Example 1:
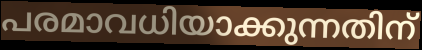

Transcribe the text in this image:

പരമാവധിയാക്കുന്നതിന്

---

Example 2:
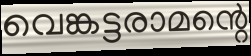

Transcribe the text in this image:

വെങ്കട്ടരാമന്റെ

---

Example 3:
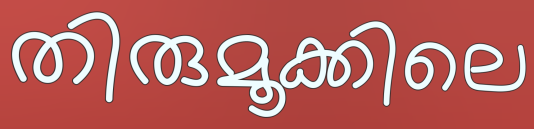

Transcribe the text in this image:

തിരുമൂക്കിലെ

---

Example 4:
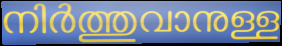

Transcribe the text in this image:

നിർത്തുവാനുള്ള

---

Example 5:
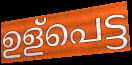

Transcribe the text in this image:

ഉള്പെട്ട